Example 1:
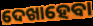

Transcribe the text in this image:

ଦେଖାହେବା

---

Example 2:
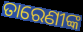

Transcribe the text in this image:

ତାରେଣୀଙ୍କ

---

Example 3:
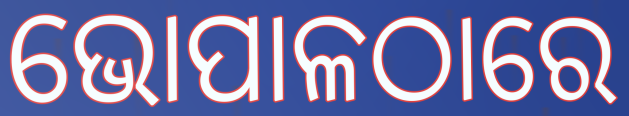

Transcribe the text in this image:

ଭୋପାଳଠାରେ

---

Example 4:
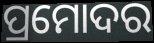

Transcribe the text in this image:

ପ୍ରମୋଦର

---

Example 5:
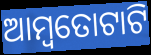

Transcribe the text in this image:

ଆମ୍ବତୋଟାଟି